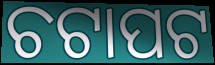
ଚଟାପଟ